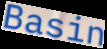
Basin